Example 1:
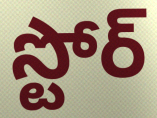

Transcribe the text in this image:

స్టోర్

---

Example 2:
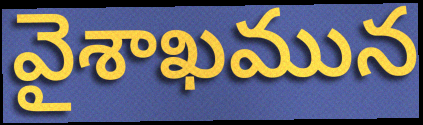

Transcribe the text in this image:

వైశాఖమున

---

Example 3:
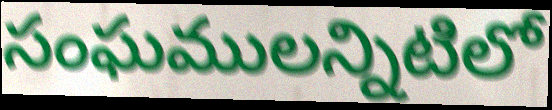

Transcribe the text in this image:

సంఘములన్నిటిలో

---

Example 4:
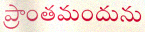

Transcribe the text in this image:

ప్రాంతమందును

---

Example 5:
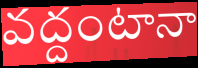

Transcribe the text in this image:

వద్దంటానా